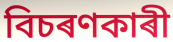
বিচৰণকাৰী